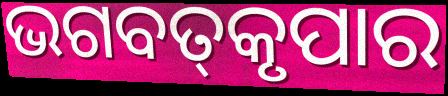
ଭଗବତ୍‌କୃପାର